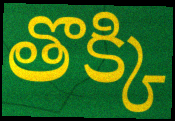
తొక్కి